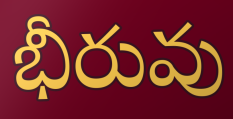
భీరువు